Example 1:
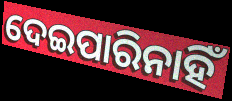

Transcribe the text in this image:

ଦେଇପାରିନାହିଁ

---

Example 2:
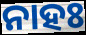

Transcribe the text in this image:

ନାହଃ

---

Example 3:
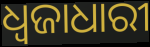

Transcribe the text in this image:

ଧ୍ବଜାଧାରୀ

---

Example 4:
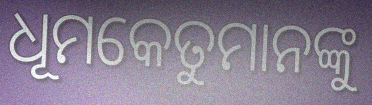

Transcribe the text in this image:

ଧୂମକେତୁମାନଙ୍କୁ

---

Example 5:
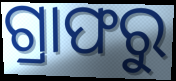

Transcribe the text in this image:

ଗ୍ରାଫରୁ